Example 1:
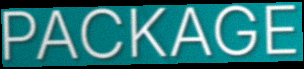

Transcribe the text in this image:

PACKAGE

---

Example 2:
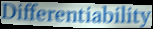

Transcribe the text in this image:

Differentiability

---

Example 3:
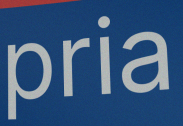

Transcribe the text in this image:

pria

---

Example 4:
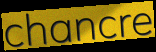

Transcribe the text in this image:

chancre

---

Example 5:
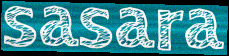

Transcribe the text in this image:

sasara